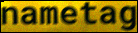
nametag